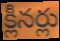
క్లీనర్లు